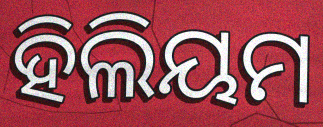
ହିଲିୟମ